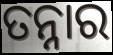
ତନ୍ନାର